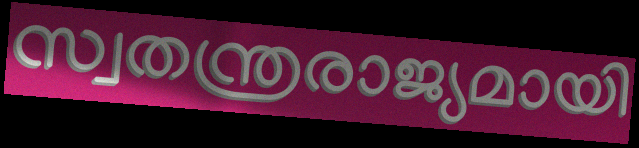
സ്വതന്ത്രരാജ്യമായി